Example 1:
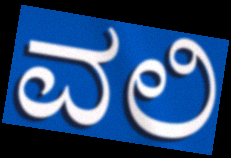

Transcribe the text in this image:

ವಲಿ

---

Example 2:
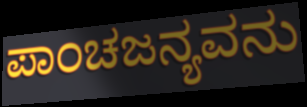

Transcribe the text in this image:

ಪಾಂಚಜನ್ಯವನು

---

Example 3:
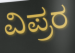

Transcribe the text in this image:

ವಿಪ್ರರ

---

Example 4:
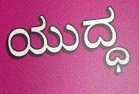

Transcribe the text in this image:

ಯುದ್ಧ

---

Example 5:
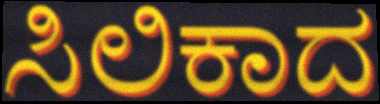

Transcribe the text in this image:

ಸಿಲಿಕಾದ